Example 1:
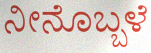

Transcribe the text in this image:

ನೀನೊಬ್ಬಳೆ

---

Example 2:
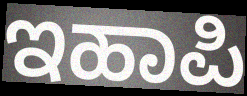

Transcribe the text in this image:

ಇಹಾಪಿ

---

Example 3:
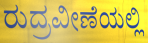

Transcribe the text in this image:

ರುದ್ರವೀಣೆಯಲ್ಲಿ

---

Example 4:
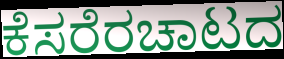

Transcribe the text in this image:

ಕೆಸರೆರಚಾಟದ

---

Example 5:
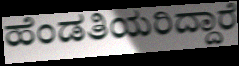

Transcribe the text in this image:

ಹೆಂಡತಿಯರಿದ್ದಾರೆ